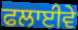
ਫਲਾਈਵੇ